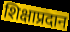
शिक्षाप्रदान